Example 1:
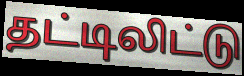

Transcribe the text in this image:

தட்டிலிட்டு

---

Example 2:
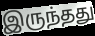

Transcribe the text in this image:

இருந்தது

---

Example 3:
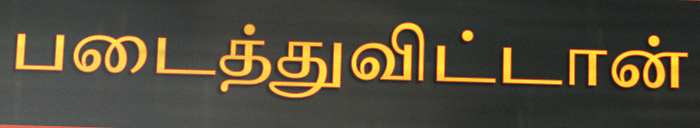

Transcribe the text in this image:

படைத்துவிட்டான்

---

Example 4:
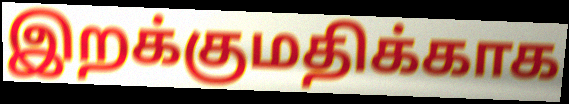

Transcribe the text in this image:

இறக்குமதிக்காக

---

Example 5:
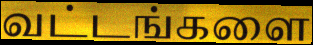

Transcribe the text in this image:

வட்டங்களை